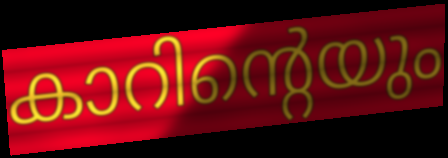
കാറിന്റെയും